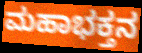
ಮಹಾಭಕ್ತನ